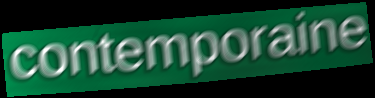
contemporaine